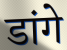
डांगे